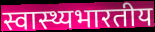
स्वास्थ्यभारतीय